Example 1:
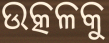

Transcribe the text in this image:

ଉତ୍କଳକୁ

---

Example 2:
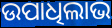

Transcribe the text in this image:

ଉପାଧିଲାଭ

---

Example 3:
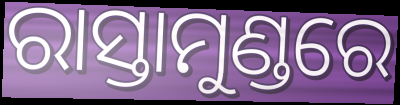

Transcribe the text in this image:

ରାସ୍ତାମୁଣ୍ଡରେ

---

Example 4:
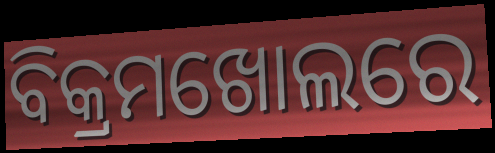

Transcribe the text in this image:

ବିକ୍ରମଖୋଲରେ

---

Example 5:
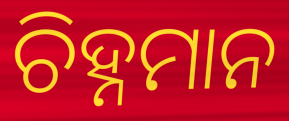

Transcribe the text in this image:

ଚିହ୍ନମାନ